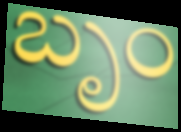
బృం